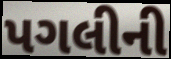
પગલીની